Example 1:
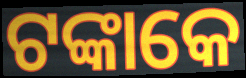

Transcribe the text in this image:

ଟଙ୍କାକେ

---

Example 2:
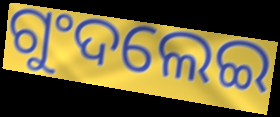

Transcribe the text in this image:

ଗୁଂଦଲେଇ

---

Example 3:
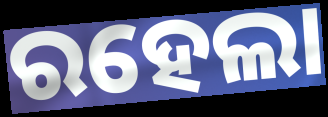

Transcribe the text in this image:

ରହେଲା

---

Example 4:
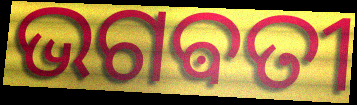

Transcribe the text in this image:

ଭଗଵତୀ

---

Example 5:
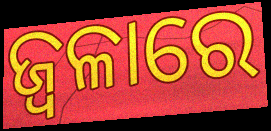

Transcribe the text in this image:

ଜ୍ୱଳାରେ